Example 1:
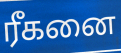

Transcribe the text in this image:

ரீகனை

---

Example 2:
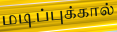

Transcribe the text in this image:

மடிப்புக்கால்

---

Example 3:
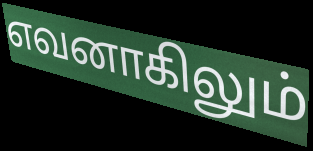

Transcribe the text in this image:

எவனாகிலும்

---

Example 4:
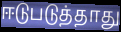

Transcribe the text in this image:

ஈடுபடுத்தாது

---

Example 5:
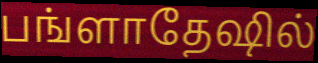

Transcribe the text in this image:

பங்ளாதேஷில்